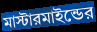
মাস্টারমাইন্ডের